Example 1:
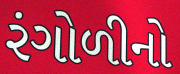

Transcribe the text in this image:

રંગોળીનો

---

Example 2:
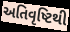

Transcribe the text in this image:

અતિવૃષ્ટિથી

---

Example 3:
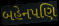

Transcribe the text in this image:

બહેનપણિ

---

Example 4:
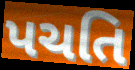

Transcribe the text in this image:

પચતિ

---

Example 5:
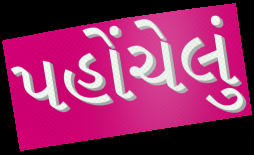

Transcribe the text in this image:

પહોંચેલું